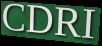
CDRI